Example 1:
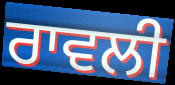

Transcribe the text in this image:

ਰਾਵਲੀ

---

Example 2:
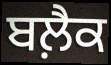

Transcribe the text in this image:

ਬਲ਼ੈਕ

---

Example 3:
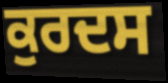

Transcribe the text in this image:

ਕੁਰਦਸ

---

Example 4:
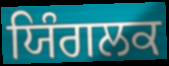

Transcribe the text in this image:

ਯਿੰਗਲਕ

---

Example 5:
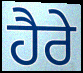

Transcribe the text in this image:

ਹੈਰੇ